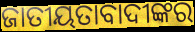
ଜାତୀୟତାବାଦୀଙ୍କର